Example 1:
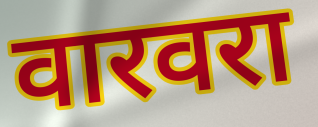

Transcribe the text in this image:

वारवरा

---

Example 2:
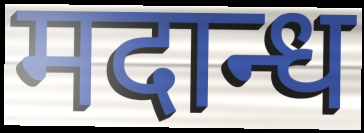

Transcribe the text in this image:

मदान्ध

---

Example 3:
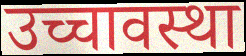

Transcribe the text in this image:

उच्चावस्था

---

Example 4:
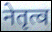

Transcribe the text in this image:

नेतृत्व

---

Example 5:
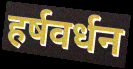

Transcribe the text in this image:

हर्षवर्धन